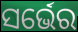
ସର୍ଭେର